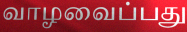
வாழவைப்பது